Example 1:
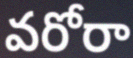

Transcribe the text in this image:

వరోరా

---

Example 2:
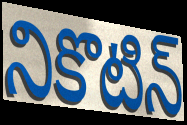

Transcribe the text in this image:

నికొటిన్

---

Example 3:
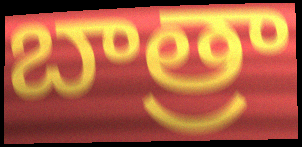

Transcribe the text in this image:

బాత్రా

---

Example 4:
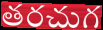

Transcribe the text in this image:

తరచుగ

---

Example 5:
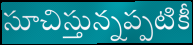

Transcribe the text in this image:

సూచిస్తున్నప్పటికీ